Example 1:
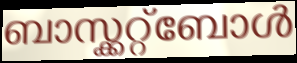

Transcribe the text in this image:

ബാസ്ക്കറ്റ്ബോൾ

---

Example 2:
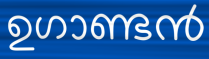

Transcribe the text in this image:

ഉഗാണ്ടൻ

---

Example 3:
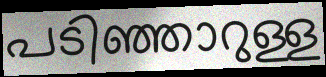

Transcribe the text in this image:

പടിഞ്ഞാറുള്ള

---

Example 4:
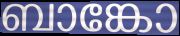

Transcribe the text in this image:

ബാങ്കോ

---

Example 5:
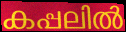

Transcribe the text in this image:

കപ്പലിൽ